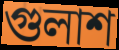
গুলাশ